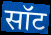
सॉट